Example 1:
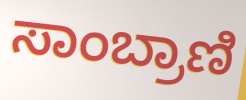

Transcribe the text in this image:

ಸಾಂಬ್ರಾಣಿ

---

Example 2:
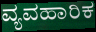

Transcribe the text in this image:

ವ್ಯವಹಾರಿಕ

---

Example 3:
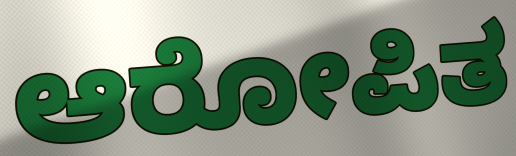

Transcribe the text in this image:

ಆರೋಪಿತ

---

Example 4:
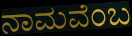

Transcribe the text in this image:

ನಾಮವೆಂಬ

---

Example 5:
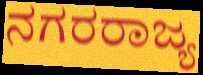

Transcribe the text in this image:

ನಗರರಾಜ್ಯ